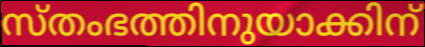
സ്തംഭത്തിനുയാക്കിന്